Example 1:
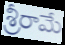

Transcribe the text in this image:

శ్రీరామే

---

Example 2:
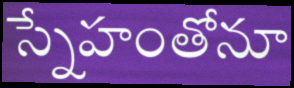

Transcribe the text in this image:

స్నేహంతోనూ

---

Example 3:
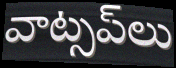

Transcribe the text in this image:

వాట్సప్‌లు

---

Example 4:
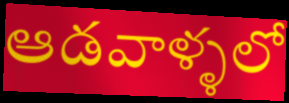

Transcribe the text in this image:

ఆడవాళ్ళలో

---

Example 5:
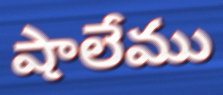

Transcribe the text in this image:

షాలేము